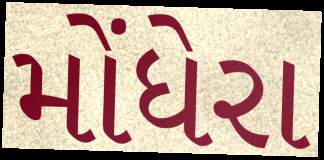
મોંધેરા